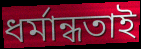
ধর্মান্ধতাই